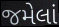
જમેલાં